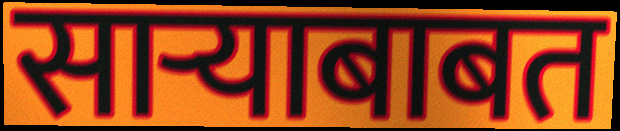
साऱ्याबाबत